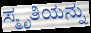
ಸ್ಮೃತಿಯನ್ನು